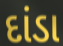
દાંડા